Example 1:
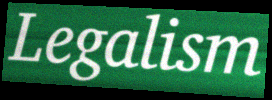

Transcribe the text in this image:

Legalism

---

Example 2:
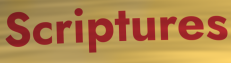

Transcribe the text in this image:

Scriptures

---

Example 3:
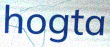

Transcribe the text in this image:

hogta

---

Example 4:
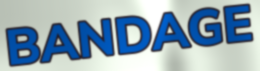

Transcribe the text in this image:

BANDAGE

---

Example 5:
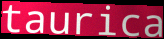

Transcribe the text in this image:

taurica